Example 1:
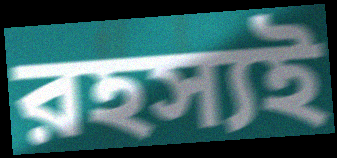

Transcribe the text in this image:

রহস্যই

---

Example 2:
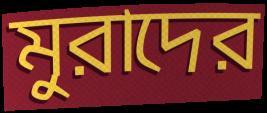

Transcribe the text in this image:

মুরাদের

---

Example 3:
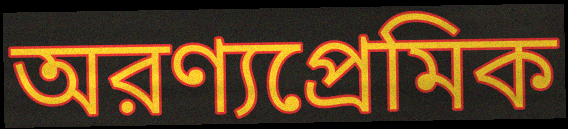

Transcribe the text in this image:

অরণ্যপ্রেমিক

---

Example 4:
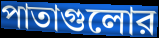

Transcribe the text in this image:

পাতাগুলোর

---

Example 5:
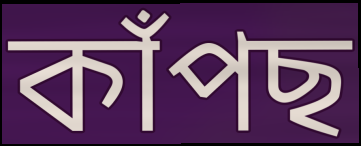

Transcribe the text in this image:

কাঁপছ